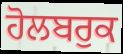
ਹੋਲਬਰੁਕ